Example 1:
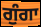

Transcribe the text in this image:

ਗੁੰਗਾ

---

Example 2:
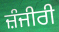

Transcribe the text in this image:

ਜ਼ੰਜੀਰੀ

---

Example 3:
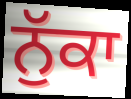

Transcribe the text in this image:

ਨੁੱਕਾ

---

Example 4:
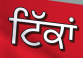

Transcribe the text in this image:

ਟਿੱਕਾਂ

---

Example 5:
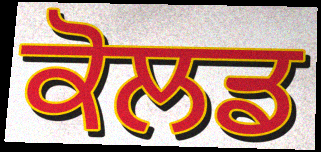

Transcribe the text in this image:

ਕੋਲਡ